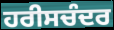
ਹਰੀਸਚੰਦਰ